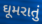
ઘૂમરાતું